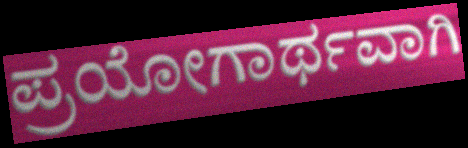
ಪ್ರಯೋಗಾರ್ಥವಾಗಿ